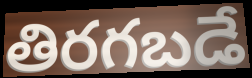
తిరగబడే